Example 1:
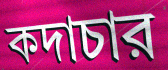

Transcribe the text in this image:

কদাচার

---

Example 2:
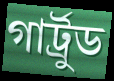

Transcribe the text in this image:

গার্ট্রুড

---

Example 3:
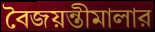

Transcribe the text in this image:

বৈজয়ন্তীমালার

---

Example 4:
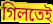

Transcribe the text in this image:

গিলতেই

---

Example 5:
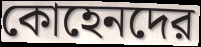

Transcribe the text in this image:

কোহেনদের